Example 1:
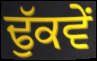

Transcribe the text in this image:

ਢੁੱਕਵੇਂ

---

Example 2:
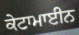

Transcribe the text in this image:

ਕੇਟਾਮਾਈਨ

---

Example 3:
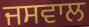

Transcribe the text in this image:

ਜਸਵਾਲ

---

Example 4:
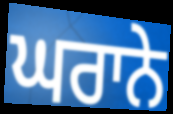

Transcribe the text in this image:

ਘਰਾਨੇ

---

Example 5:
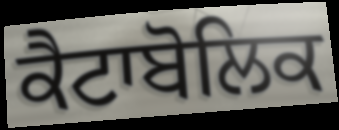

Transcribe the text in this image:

ਕੈਟਾਬੋਲਿਕ